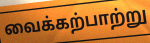
வைக்கற்பாற்று